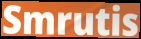
Smrutis